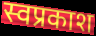
स्वप्रकाश